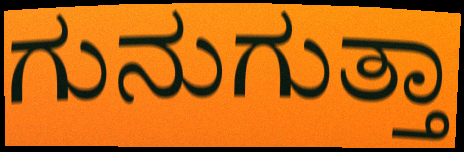
ಗುನುಗುತ್ತಾ